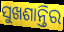
ସୁଖଶାନ୍ତିର